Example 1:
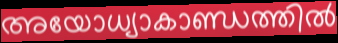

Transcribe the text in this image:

അയോധ്യാകാണ്ഡത്തിൽ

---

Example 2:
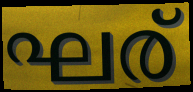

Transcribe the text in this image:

ഘര്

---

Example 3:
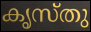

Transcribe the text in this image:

കൃസ്തു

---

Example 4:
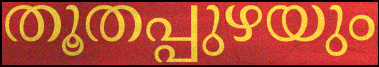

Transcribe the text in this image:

തൂതപ്പുഴയും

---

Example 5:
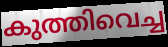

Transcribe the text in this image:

കുത്തിവെച്ച